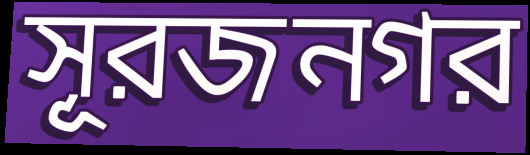
সূরজনগর